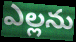
ఎల్లను